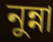
নুন্না